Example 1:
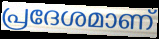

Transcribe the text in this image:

പ്രദേശമാണ്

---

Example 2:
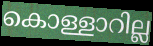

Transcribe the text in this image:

കൊള്ളാറില്ല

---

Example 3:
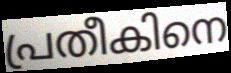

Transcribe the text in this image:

പ്രതീകിനെ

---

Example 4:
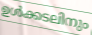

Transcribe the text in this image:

ഉൾക്കടലിനും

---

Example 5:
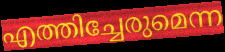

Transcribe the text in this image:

എത്തിച്ചേരുമെന്ന